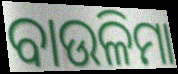
ବାଉଳିମା